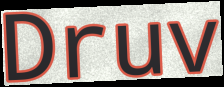
Druv